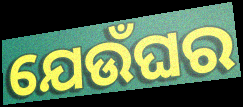
ଯେଉଁଘର